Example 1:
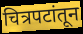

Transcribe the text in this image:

चित्रपटांतून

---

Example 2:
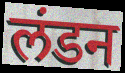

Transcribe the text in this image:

लंडन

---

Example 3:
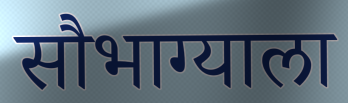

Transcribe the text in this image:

सौभाग्याला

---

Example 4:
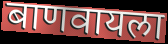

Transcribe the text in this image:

बाणवायला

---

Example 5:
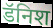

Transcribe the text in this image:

डॅनिश